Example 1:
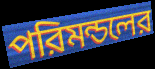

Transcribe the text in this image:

পরিমন্ডলের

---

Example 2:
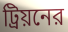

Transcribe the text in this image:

ট্রিয়নের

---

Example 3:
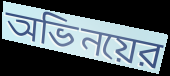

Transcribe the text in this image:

অভিনয়ের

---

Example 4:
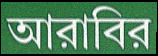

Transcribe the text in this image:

আরাবির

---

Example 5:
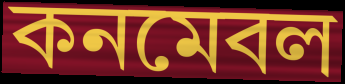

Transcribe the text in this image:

কনমেবল